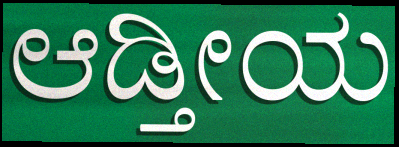
ಆಡ್ತೀಯ